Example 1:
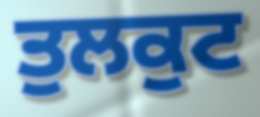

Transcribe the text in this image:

ਤੁਲਕੁਟ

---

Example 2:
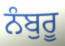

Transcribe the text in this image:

ਨੰਬੁਰੂ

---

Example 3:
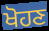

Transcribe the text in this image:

ਖੋਹਣ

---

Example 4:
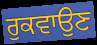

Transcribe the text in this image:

ਰੁਕਵਾਉਣ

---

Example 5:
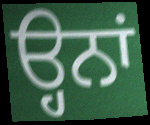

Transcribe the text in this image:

ੳ੍ਹਨਾਂ